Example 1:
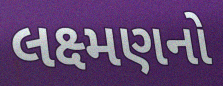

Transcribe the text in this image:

લક્ષ્મણનો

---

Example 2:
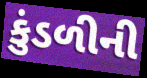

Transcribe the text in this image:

કુંડળીની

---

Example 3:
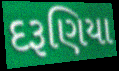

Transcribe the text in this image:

દરૂણિયા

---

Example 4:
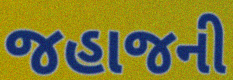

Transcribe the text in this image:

જહાજની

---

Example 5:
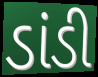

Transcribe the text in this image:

ડાંડી